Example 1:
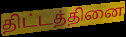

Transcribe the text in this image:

திட்டத்தினை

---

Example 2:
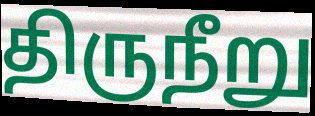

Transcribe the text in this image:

திருநீறு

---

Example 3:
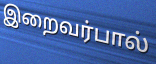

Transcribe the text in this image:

இறைவர்பால்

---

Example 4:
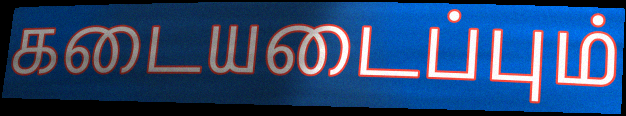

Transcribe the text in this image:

கடையடைப்பும்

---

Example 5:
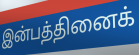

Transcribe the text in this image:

இன்பத்தினைக்